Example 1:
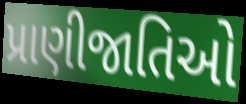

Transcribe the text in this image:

પ્રાણીજાતિઓ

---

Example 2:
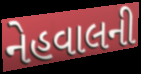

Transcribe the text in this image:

નેહવાલની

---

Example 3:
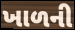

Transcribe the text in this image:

ખાળની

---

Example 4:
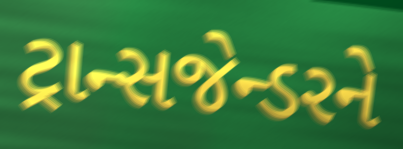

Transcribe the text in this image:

ટ્રાન્સજેન્ડરને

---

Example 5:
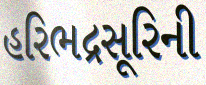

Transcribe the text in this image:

હરિભદ્રસૂરિની